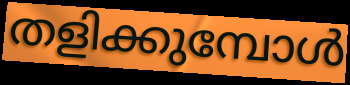
തളിക്കുമ്പോൾ